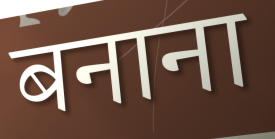
बनाना